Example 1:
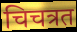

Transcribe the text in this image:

चिचत्रत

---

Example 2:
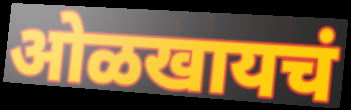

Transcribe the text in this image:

ओळखायचं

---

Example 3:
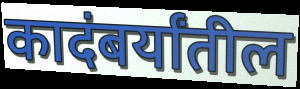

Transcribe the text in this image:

कादंबर्यांतील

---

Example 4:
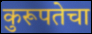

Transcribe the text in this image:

कुरूपतेचा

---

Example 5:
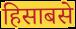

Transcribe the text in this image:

हिसाबसे